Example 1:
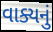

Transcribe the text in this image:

વાક્યનું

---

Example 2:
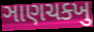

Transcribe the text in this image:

ઞાણચક્ખુ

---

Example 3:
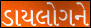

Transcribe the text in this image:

ડાયલોગને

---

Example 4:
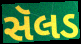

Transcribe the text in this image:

સૅલડ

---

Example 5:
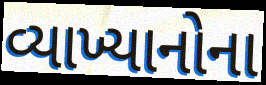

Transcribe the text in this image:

વ્યાખ્યાનોના